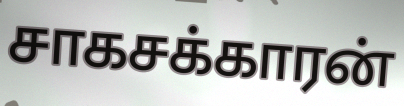
சாகசக்காரன்